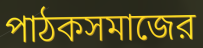
পাঠকসমাজের